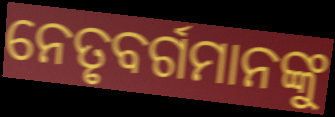
ନେତୃବର୍ଗମାନଙ୍କୁ